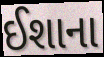
ઈશાના